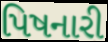
પિષનારી